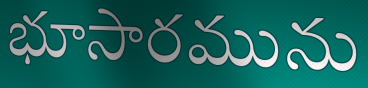
భూసారమును